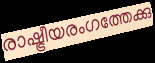
രാഷ്ട്രീയരംഗത്തേക്കു